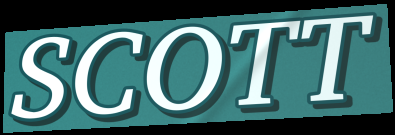
SCOTT